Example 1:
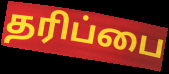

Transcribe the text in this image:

தரிப்பை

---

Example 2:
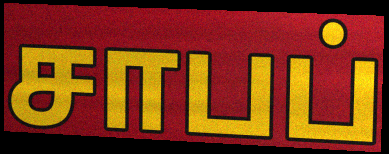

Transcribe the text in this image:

சாபப்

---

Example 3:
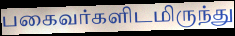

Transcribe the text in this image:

பகைவர்களிடமிருந்து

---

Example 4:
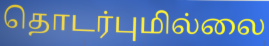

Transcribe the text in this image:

தொடர்புமில்லை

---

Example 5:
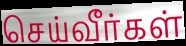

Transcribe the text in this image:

செய்வீர்கள்